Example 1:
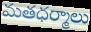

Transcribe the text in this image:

మతధర్మాలు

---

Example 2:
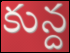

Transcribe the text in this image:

కున్ద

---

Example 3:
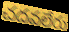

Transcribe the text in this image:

చదవలేరు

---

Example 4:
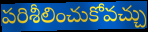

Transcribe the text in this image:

పరిశీలించుకోవచ్చు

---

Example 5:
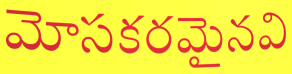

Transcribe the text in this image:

మోసకరమైనవి